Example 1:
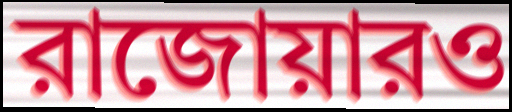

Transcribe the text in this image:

রাজোয়ারও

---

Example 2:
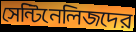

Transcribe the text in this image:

সেন্টিনেলিজদের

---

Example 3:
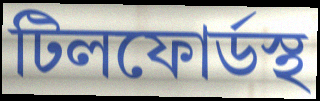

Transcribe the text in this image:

টিলফোর্ডস্থ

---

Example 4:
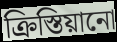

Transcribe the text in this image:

ক্রিস্তিয়ানো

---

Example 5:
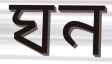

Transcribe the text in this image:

ঘন